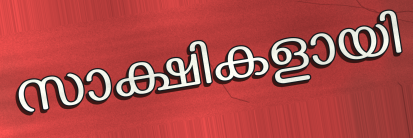
സാക്ഷികളായി